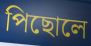
পিছোলে